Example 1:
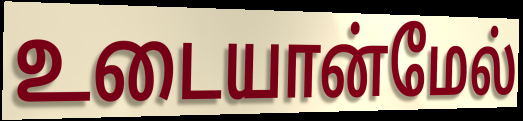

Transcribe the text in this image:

உடையான்மேல்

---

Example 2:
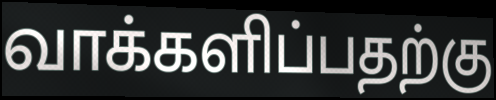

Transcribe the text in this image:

வாக்களிப்பதற்கு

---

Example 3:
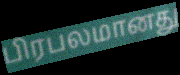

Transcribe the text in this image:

பிரபலமானது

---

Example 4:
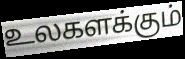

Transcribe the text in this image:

உலகளக்கும்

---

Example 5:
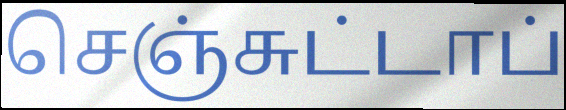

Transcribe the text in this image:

செஞ்சுட்டாப்